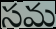
సమ